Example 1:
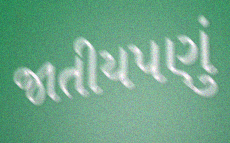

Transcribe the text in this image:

જાતીયપણું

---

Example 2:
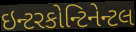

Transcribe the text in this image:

ઇન્ટરકોન્ટિનેન્ટલ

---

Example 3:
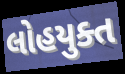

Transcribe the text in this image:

લોહયુક્ત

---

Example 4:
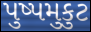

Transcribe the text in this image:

પુષ્પમુકુટ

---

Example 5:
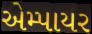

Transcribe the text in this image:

એમ્પાયર